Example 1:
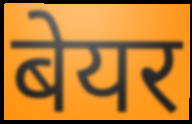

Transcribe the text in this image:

बेयर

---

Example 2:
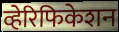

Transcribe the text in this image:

व्हेरिफिकेशन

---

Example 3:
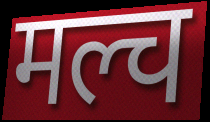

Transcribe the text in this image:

मल्च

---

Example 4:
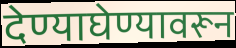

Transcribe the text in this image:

देण्याघेण्यावरून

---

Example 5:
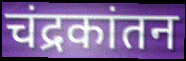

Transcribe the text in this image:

चंद्रकांतन